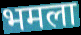
भमला